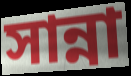
সান্না